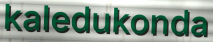
kaledukonda